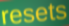
resets